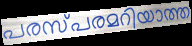
പരസ്പരമറിയാത്ത